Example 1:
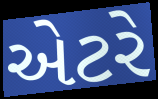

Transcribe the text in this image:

એટરે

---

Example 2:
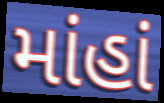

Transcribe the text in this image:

માંહાં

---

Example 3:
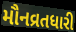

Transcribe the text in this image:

મૌનવ્રતધારી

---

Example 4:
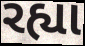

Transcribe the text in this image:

રહ્યા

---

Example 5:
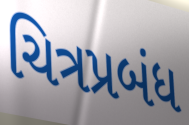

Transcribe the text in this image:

ચિત્રપ્રબંધ